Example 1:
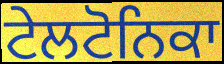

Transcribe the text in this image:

ਟੇਲਟੋਨਿਕਾ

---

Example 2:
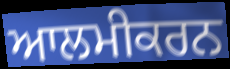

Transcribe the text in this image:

ਆਲਮੀਕਰਨ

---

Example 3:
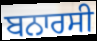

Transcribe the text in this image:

ਬਨਾਰਸੀ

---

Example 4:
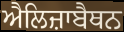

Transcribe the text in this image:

ਐਲਿਜ਼ਾਬੈਥਨ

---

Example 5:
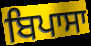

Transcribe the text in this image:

ਬਿਪਾਸਾ